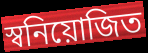
স্বনিয়োজিত